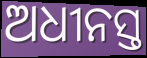
ଅଧୀନସ୍ତ